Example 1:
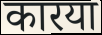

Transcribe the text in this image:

कारया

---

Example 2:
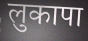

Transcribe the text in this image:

लुकापा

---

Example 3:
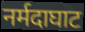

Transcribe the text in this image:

नर्मदाघाट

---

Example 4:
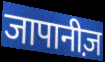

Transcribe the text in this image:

जापानीज़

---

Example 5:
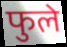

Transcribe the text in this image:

फुले